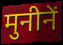
मुनीनें